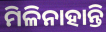
ମିଳିନାହାନ୍ତି